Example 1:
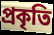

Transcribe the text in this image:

প্ৰকৃতি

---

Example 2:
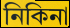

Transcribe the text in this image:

নিকিনা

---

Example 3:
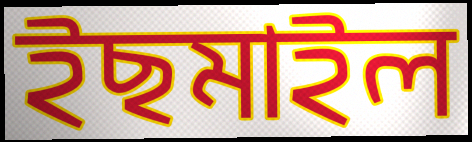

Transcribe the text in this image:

ইছমাইল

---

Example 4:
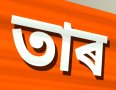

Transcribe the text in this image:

তাৰ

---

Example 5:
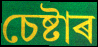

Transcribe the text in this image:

চেষ্টাৰ